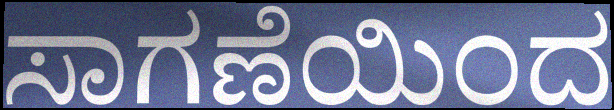
ಸಾಗಣೆಯಿಂದ